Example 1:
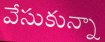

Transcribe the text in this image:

వేసుకున్నా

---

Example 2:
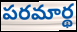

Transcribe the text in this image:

పరమార్థ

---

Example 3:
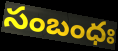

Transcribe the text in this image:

సంబంధః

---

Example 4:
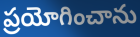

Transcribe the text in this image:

ప్రయోగించాను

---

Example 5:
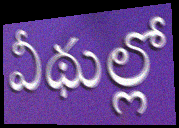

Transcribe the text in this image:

వీథుల్లో